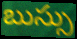
బుస్సు